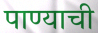
पाण्याची